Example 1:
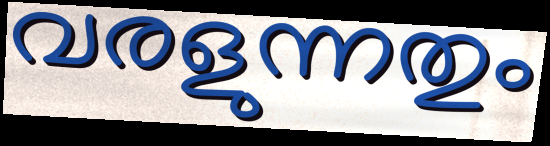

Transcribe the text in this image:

വരളുന്നതും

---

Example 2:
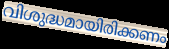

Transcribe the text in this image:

വിശുദ്ധമായിരിക്കണം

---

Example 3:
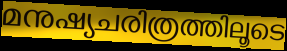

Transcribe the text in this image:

മനുഷ്യചരിത്രത്തിലൂടെ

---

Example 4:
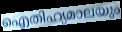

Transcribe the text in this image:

ഐതിഹ്യമാലയും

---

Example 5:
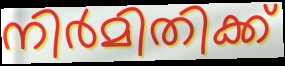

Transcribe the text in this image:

നിർമിതിക്ക്